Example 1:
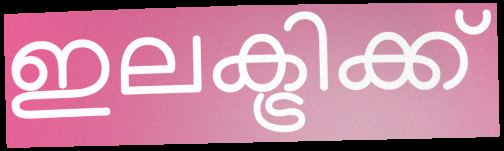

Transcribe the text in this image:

ഇലക്ട്രിക്ക്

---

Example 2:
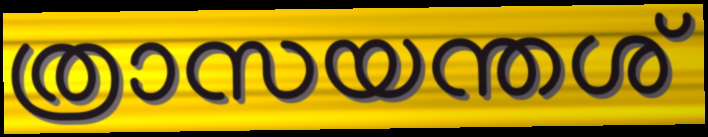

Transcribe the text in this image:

ത്രാസയന്തശ്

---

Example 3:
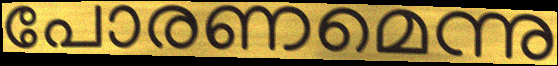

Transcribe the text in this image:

പോരണമെന്നു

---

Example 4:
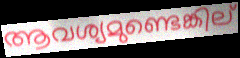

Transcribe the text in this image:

ആവശ്യമുണ്ടെങ്കില്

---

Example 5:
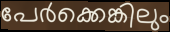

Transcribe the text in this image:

പേർക്കെങ്കിലും